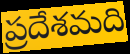
ప్రదేశమది